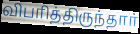
விபரித்திருந்தார்